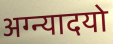
अग्न्यादयो